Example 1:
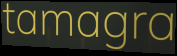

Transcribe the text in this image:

tamagra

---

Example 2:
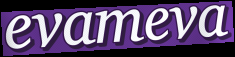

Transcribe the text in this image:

evameva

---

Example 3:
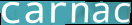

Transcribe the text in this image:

carnac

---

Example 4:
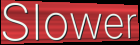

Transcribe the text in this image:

Slower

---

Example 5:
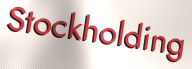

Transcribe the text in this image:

Stockholding